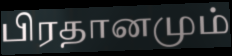
பிரதானமும்